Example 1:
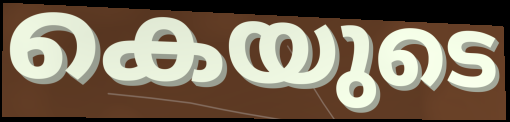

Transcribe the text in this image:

കെയുടെ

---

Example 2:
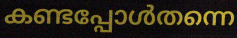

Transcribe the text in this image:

കണ്ടപ്പോൾതന്നെ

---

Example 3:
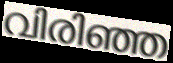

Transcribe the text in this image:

വിരിഞ്ഞ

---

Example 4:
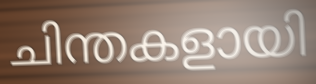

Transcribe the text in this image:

ചിന്തകളായി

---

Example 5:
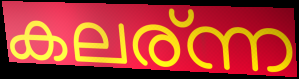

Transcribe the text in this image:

കലര്ന്ന